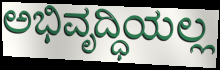
ಅಭಿವೃದ್ಧಿಯಲ್ಲ